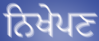
ਨਿਖੇਪਣ